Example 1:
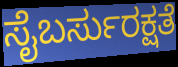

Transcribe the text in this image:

ಸೈಬರ್ಸುರಕ್ಷತೆ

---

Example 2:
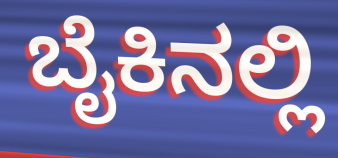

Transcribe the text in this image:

ಬೈಕಿನಲ್ಲಿ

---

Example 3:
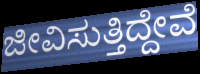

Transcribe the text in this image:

ಜೀವಿಸುತ್ತಿದ್ದೇವೆ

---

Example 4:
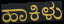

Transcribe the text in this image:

ಹಾಕಿಳು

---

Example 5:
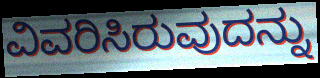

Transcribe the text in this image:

ವಿವರಿಸಿರುವುದನ್ನು